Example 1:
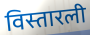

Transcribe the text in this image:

विस्तारली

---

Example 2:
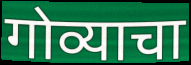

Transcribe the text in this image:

गोव्याचा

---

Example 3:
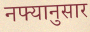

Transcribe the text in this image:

नफ्यानुसार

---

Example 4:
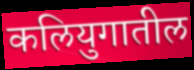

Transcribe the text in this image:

कलियुगातील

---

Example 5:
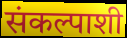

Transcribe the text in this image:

संकल्पाशी